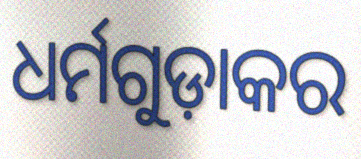
ଧର୍ମଗୁଡ଼ାକର